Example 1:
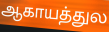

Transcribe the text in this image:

ஆகாயத்துல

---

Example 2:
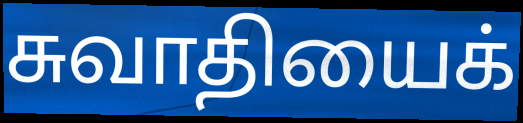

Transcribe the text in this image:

சுவாதியைக்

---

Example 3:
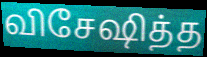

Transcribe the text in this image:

விசேஷித்த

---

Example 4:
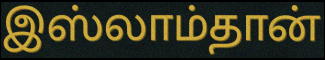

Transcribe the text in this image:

இஸ்லாம்தான்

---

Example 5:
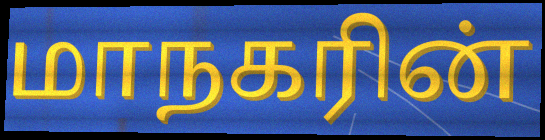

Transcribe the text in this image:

மாநகரின்